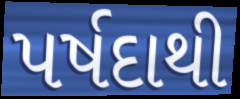
પર્ષદાથી